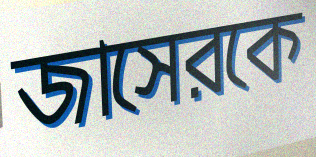
জাসেরকে